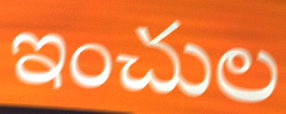
ఇంచుల